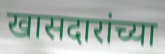
खासदारांच्या